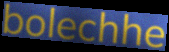
bolechhe